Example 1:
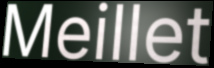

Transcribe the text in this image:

Meillet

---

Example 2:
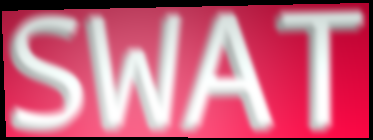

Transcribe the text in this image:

SWAT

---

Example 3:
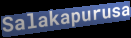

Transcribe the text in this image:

Salakapurusa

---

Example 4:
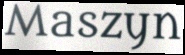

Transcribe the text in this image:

Maszyn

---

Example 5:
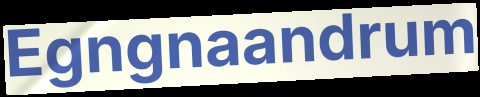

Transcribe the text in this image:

Egngnaandrum